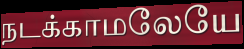
நடக்காமலேயே